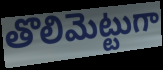
తొలిమెట్టుగా